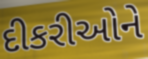
દીકરીઓને